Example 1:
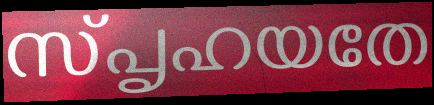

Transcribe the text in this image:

സ്പൃഹയതേ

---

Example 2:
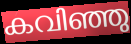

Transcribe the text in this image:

കവിഞ്ഞു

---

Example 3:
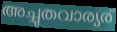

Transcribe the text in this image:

അച്ചുതവാര്യര്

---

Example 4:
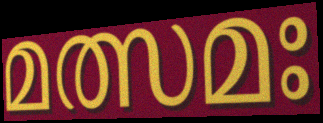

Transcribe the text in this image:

മത്സമഃ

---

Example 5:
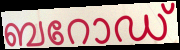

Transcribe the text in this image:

ബറോഡ്